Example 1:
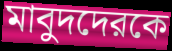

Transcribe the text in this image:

মাবুদদেরকে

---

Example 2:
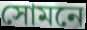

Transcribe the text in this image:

সোমনে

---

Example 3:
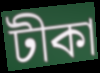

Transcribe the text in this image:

টীকা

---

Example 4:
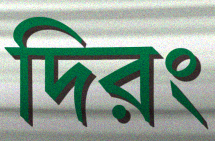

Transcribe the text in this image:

দিরং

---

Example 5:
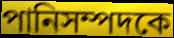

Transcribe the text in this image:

পানিসম্পদকে